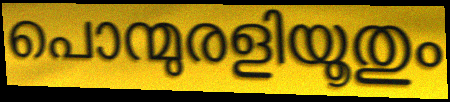
പൊന്മുരളിയൂതും